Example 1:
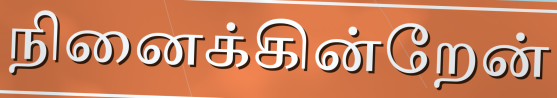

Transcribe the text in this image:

நினைக்கின்றேன்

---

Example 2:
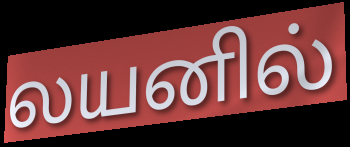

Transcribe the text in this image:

லயனில்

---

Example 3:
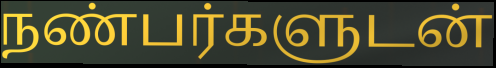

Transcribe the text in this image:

நண்பர்களுடன்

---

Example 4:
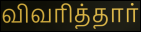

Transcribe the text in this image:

விவரித்தார்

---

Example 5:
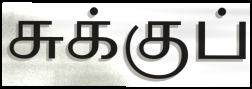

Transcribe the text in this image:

சுக்குப்